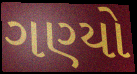
ગણ્યો